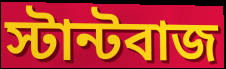
স্টান্টবাজ